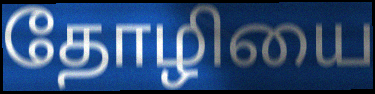
தோழியை